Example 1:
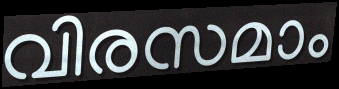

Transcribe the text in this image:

വിരസമാം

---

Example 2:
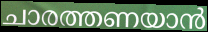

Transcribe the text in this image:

ചാരത്തണയാൻ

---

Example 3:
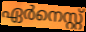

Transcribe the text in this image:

ഏർനെസ്റ്റ്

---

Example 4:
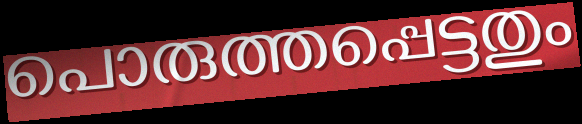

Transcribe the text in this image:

പൊരുത്തപ്പെട്ടതും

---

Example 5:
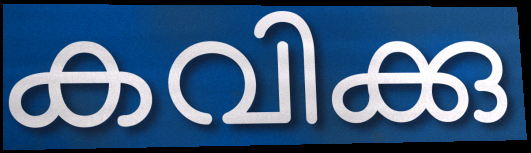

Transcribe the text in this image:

കവിക്കു